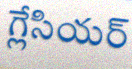
గ్లేసియర్